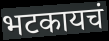
भटकायचं